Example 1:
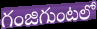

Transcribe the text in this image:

గంజిగుంటలో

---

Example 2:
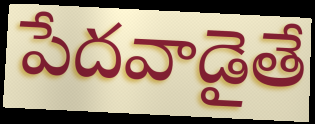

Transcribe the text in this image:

పేదవాడైతే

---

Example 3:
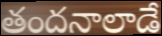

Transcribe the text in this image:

తందనాలాడే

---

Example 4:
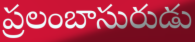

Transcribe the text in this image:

ప్రలంబాసురుడు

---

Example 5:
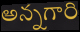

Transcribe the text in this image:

అన్నగారి